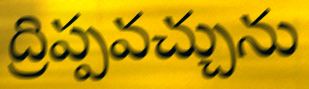
ద్రిప్పవచ్చును